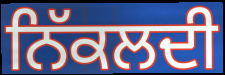
ਨਿੱਕਲਦੀ